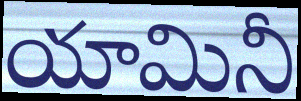
యామినీ